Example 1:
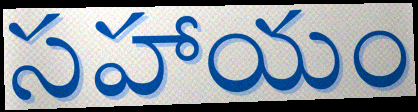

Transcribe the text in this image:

సహాయం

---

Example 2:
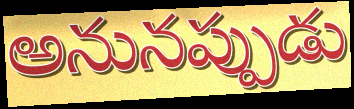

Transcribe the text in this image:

అనునప్పుడు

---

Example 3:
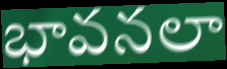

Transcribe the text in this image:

భావనలా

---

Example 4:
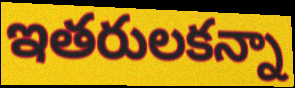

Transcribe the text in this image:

ఇతరులకన్నా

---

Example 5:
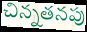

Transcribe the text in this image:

చిన్నతనపు